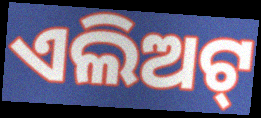
ଏଲିଅଟ୍